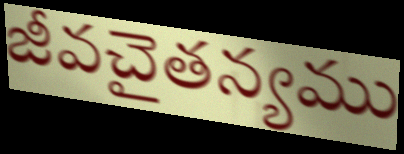
జీవచైతన్యము